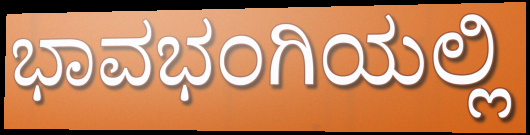
ಭಾವಭಂಗಿಯಲ್ಲಿ